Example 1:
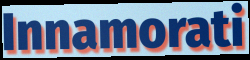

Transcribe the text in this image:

Innamorati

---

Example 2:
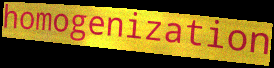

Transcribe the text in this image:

homogenization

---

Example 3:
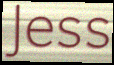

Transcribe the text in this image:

Jess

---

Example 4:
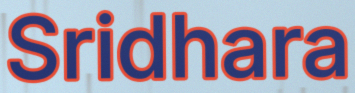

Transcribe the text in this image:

Sridhara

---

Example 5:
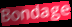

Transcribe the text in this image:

Bondage